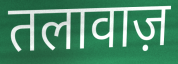
तलावाज़